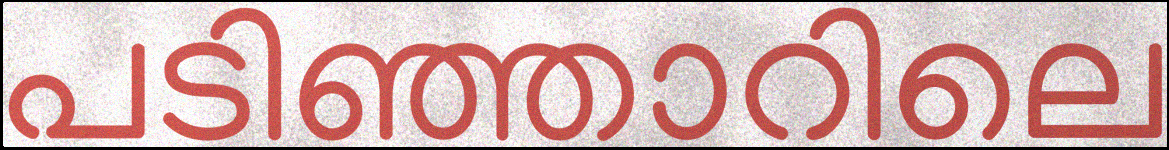
പടിഞ്ഞാറിലെ